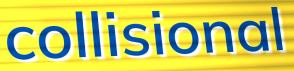
collisional